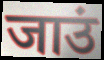
जाउं